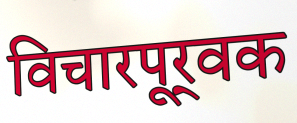
विचारपूर्वक